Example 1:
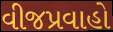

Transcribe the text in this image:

વીજપ્રવાહો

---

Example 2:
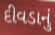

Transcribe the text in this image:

દીવડાનું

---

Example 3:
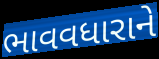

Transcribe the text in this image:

ભાવવધારાને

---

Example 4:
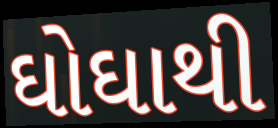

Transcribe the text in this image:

ઘોઘાથી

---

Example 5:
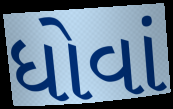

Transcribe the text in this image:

ધોવાં